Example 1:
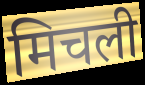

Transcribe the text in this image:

मिचली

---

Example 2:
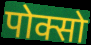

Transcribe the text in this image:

पोक्सो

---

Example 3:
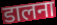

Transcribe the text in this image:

डालना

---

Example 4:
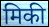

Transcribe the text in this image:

मिकी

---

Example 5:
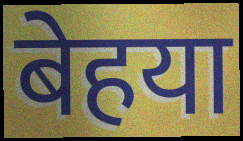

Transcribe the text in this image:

बेहया